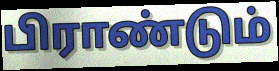
பிராண்டும்